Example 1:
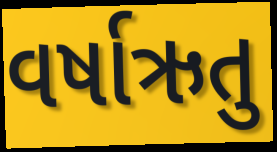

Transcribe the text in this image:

વર્ષાઋતુ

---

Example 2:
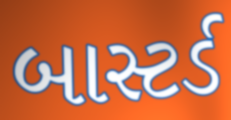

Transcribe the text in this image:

બાસ્ટર્ડ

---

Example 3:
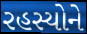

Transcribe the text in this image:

રહસ્યોને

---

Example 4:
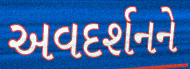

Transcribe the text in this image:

અવદર્શનને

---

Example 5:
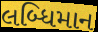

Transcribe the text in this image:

લબ્ધિમાન